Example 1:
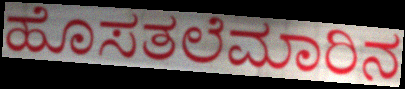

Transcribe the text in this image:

ಹೊಸತಲೆಮಾರಿನ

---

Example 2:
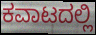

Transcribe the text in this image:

ಕವಾಟದಲ್ಲಿ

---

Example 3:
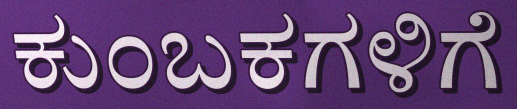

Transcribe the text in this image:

ಕುಂಬಕಗಳಿಗೆ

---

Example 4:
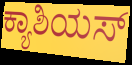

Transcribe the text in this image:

ಕ್ಯಾಶಿಯಸ್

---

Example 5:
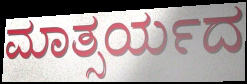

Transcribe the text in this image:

ಮಾತ್ಸರ್ಯದ